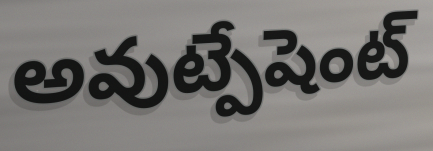
అవుట్పేషెంట్